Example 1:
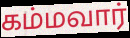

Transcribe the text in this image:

கம்மவார்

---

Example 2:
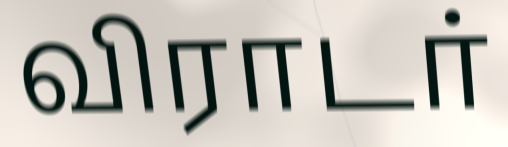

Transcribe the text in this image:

விராடர்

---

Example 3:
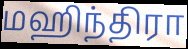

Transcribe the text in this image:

மஹிந்திரா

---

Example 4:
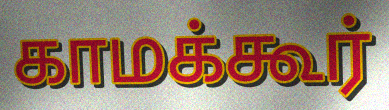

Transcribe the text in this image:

காமக்கூர்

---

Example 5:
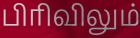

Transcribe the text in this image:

பிரிவிலும்